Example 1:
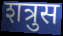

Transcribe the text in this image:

शत्रुस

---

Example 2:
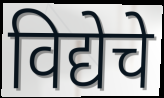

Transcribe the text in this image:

विद्येचे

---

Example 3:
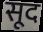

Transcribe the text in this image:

सूद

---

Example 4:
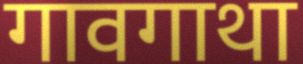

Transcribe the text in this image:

गावगाथा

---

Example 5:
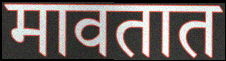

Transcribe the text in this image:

मावतात